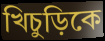
খিচুড়িকে